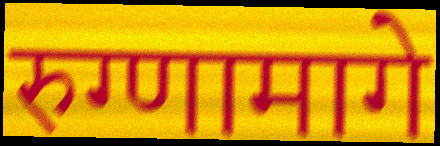
रुग्णामागे